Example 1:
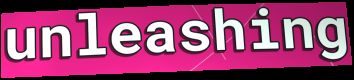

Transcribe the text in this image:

unleashing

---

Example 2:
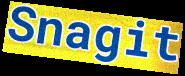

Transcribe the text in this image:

Snagit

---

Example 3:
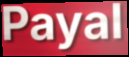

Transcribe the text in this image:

Payal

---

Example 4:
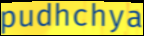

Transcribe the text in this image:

pudhchya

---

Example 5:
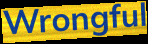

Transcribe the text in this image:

Wrongful